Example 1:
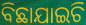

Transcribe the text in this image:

ବିଛାଯାଇଚି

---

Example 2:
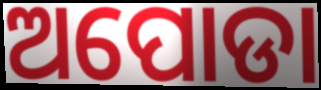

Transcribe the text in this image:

ଅପୋଡା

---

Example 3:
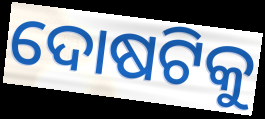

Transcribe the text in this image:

ଦୋଷଟିକୁ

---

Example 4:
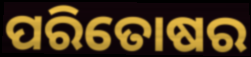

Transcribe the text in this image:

ପରିତୋଷର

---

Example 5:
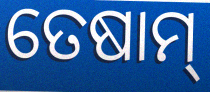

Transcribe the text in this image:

ତେଷାମ୍